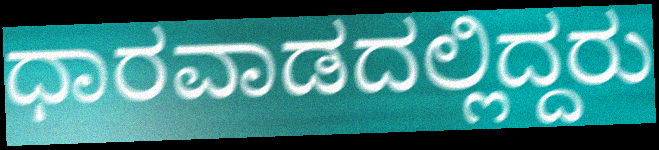
ಧಾರವಾಡದಲ್ಲಿದ್ದರು